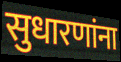
सुधारणांना